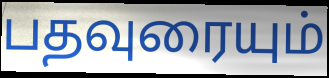
பதவுரையும்